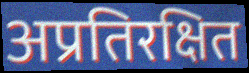
अप्रतिरक्षित